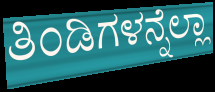
ತಿಂಡಿಗಳನ್ನೆಲ್ಲಾ